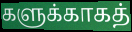
களுக்காகத்